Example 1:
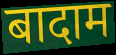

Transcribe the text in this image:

बादाम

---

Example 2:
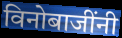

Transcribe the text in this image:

विनोबाजींनी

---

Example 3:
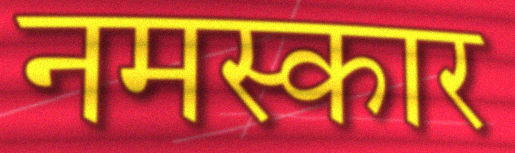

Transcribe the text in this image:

नमस्कार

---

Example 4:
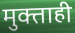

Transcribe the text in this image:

मुक्ताही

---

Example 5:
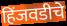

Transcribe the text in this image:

हिंजवडीचे